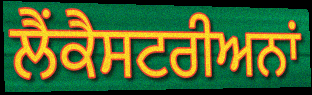
ਲੈਂਕੈਸਟਰੀਅਨਾਂ